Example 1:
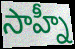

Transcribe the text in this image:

సాహ్నీ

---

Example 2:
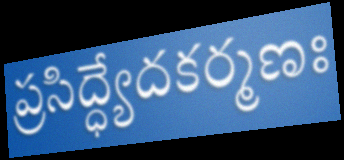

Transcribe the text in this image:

ప్రసిద్ధ్యేదకర్మణః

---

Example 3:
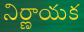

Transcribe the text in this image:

నిర్ణాయక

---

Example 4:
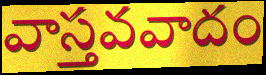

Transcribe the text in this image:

వాస్తవవాదం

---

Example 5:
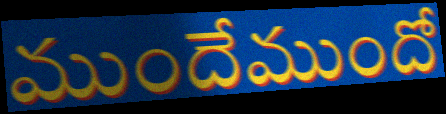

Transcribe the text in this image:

ముందేముందో